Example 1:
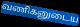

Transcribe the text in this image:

வணிகனுடைய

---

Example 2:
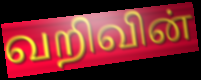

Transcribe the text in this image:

வறிவின்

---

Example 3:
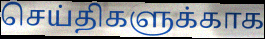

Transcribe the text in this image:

செய்திகளுக்காக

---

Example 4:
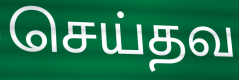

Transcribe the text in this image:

செய்தவ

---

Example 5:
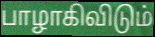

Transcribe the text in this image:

பாழாகிவிடும்